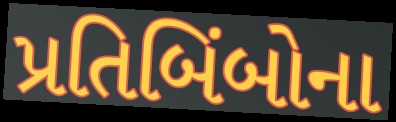
પ્રતિબિંબોના